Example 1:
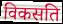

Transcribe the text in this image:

विकसति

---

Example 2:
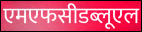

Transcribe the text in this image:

एमएफसीडब्‍लूएल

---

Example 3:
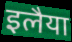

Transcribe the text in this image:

इलैया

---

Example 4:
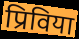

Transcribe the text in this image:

प्रिविया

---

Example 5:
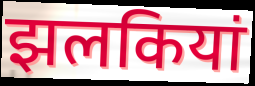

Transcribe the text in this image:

झलकियां